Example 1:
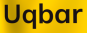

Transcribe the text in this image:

Uqbar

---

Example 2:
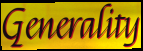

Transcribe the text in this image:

Generality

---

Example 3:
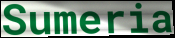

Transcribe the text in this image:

Sumeria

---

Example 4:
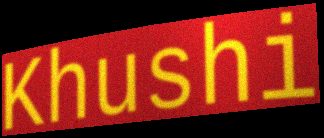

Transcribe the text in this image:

Khushi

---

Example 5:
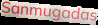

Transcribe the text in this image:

Sanmugadas